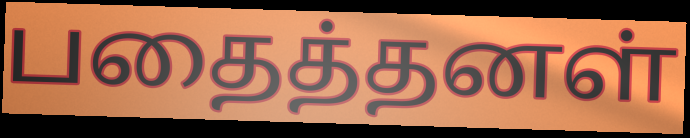
பதைத்தனள்